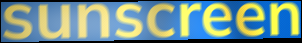
sunscreen